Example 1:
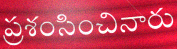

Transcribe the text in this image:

ప్రశంసించినారు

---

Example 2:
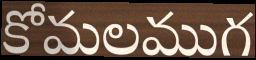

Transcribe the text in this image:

కోమలముగ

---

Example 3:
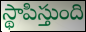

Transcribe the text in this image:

స్థాపిస్తుంది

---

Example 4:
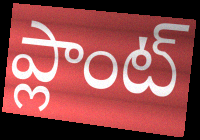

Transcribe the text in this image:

ప్లాంట్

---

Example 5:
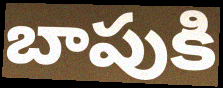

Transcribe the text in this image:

బాపుకి